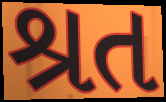
શ્રત